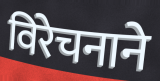
विरेचनाने